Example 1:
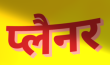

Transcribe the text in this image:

प्लैनर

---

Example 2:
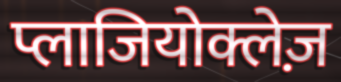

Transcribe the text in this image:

प्लाजियोक्लेज़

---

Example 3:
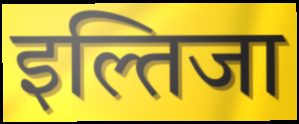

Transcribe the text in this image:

इल्तिजा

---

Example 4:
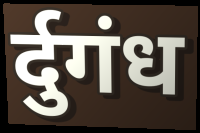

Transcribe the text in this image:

र्दुगंध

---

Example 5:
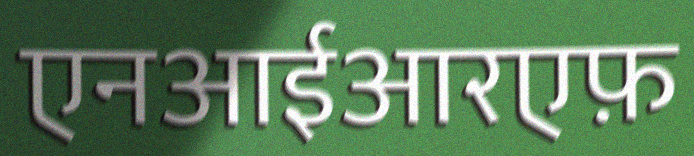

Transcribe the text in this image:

एनआईआरएफ़